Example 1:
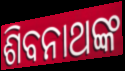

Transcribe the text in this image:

ଶିବନାଥଙ୍କ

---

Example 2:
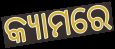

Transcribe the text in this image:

କ୍ୟାମରେ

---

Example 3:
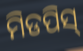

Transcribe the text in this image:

ମିଡପିସ୍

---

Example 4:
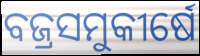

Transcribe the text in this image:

ବଜ୍ରସମୁକୀର୍ଷେ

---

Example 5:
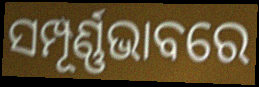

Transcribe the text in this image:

ସମ୍ପୂର୍ଣ୍ଣଭାବରେ